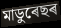
মাডুৰেছৰ